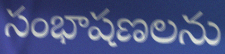
సంభాషణలను